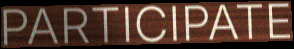
PARTICIPATE